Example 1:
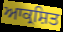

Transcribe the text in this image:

ਆਕ੍ਰਸ਼ਿਤ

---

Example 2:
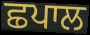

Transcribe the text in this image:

ਛਪਾਲ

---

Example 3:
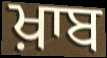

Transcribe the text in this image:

ਖ਼ਾਬ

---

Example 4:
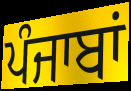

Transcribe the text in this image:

ਪੰਜਾਬਾਂ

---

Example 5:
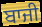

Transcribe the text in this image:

ਬਾਜੀ